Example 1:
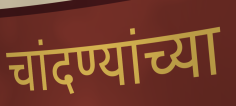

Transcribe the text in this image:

चांदण्यांच्या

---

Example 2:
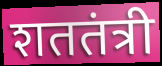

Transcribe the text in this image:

शततंत्री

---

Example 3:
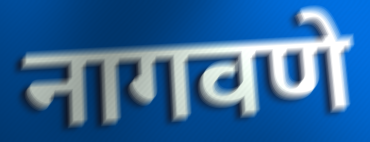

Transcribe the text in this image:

नागवणे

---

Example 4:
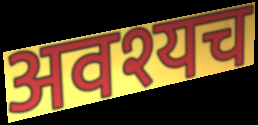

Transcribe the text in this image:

अवश्यच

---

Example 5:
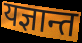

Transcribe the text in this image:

यज्ञान्त